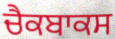
ਚੈਕਬਾਕਸ